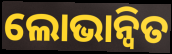
ଲୋଭାନ୍ୱିତ